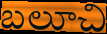
బలూచి